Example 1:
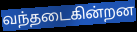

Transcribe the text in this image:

வந்தடைகின்றன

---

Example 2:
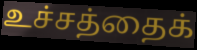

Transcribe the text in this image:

உச்சத்தைக்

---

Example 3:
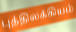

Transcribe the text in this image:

புத்திலக்கியம்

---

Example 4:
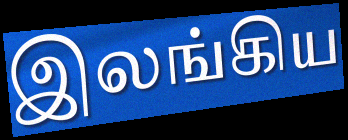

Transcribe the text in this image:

இலங்கிய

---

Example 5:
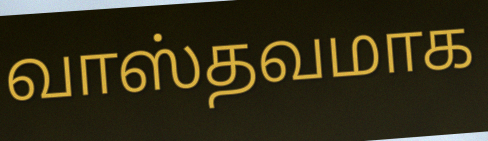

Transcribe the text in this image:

வாஸ்தவமாக